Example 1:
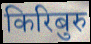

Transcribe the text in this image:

किरिबुरु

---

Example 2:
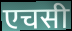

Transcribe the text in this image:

एचसी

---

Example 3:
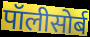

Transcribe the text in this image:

पॉलीसोर्ब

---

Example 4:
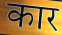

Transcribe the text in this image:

कार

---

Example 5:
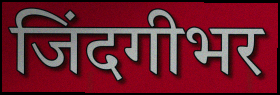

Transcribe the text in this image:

जिंदगीभर